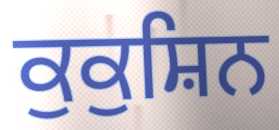
ਕੁਕੁਸ਼ਿਨ